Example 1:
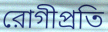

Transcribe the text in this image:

রোগীপ্রতি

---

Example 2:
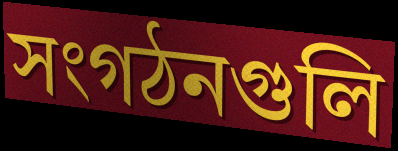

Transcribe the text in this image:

সংগঠনগুলি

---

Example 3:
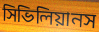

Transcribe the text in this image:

সিভিলিয়ানস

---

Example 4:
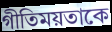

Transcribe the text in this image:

গীতিময়তাকে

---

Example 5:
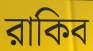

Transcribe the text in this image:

রাকিব